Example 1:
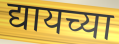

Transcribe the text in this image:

द्यायच्या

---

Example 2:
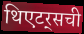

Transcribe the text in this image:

थिएटर्सची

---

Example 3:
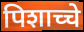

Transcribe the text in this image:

पिशाच्चे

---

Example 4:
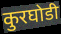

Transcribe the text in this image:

कुरघोडी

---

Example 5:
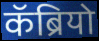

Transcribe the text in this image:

कॅब्रियो